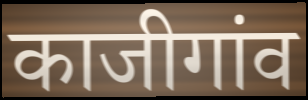
काजीगांव